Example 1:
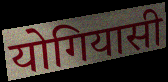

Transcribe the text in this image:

योगियासी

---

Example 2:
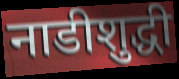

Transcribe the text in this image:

नाडीशुद्धी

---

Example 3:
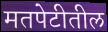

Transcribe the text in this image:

मतपेटीतील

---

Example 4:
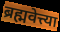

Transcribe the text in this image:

ब्रह्मवेत्त्या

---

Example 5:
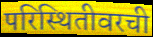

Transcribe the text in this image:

परिस्थितीवरची